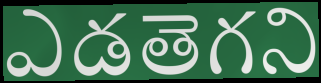
ఎడతెగని